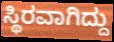
ಸ್ಥಿರವಾಗಿದ್ದು